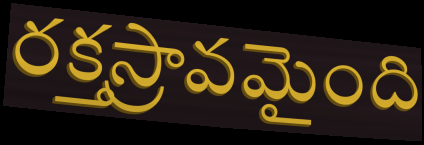
రక్తస్రావమైంది